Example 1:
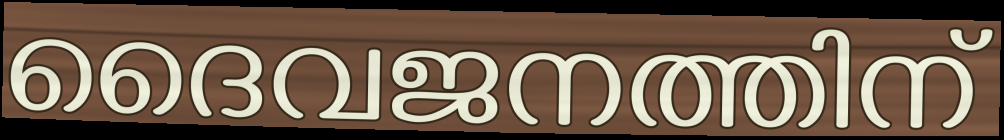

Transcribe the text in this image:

ദൈവജനത്തിന്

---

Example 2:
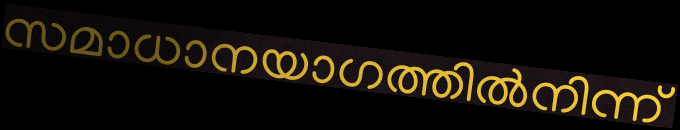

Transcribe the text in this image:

സമാധാനയാഗത്തിൽനിന്ന്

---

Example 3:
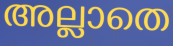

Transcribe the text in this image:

അല്ലാതെ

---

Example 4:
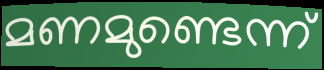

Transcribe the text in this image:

മണമുണ്ടെന്ന്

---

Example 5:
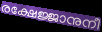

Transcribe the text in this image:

രക്ഷേജ്ജാനുനീ